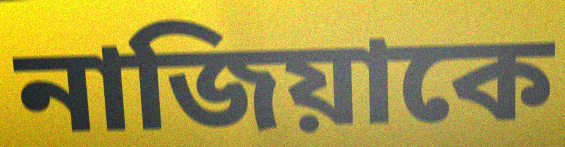
নাজিয়াকে